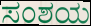
ಸಂಶಯ